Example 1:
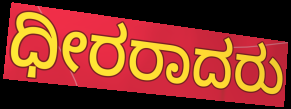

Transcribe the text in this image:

ಧೀರರಾದರು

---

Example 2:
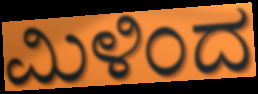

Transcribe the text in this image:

ಮಿಳಿಂದ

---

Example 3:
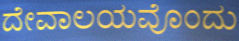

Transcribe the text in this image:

ದೇವಾಲಯವೊಂದು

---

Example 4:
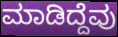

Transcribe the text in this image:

ಮಾಡಿದ್ದೆವು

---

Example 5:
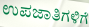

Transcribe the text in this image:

ಉಪಜಾತಿಗಳಿಗೆ